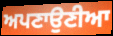
ਅਪਣਾਉਣੀਆ